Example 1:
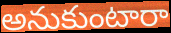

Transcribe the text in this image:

అనుకుంటారా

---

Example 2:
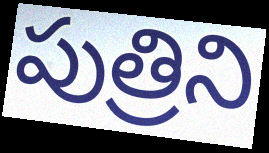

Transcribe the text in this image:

పుత్రిని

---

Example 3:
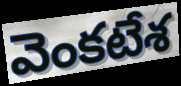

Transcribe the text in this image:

వెంకటేశ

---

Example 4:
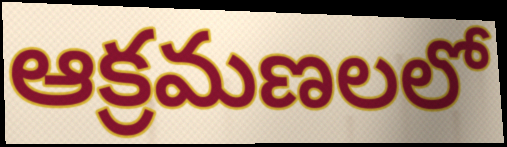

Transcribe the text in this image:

ఆక్రమణలలో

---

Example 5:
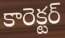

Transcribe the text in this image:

కారెక్టర్